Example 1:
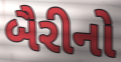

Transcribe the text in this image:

બૈરીનો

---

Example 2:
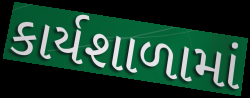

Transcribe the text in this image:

કાર્યશાળામાં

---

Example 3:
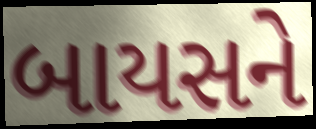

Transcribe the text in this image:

બાયસને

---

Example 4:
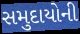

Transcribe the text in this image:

સમુદાયોની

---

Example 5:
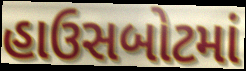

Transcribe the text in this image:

હાઉસબોટમાં